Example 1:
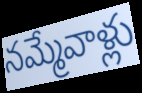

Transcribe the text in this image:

నమ్మేవాళ్లు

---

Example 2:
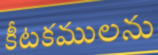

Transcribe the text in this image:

కీటకములను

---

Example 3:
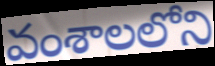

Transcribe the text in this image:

వంశాలలోని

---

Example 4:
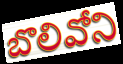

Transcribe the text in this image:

బొలివోని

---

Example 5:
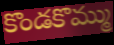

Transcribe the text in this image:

కొండకొమ్ము